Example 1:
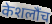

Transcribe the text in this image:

केशलौंच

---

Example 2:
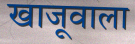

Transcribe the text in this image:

खाजूवाला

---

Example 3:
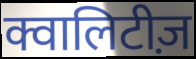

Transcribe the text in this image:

क्वालिटीज़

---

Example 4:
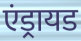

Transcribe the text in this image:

एंड्रायड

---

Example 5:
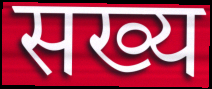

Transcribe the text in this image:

सख्य